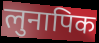
लुनापिक